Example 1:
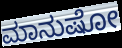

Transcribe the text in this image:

ಮಾನುಷೋ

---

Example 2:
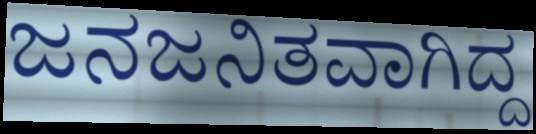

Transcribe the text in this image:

ಜನಜನಿತವಾಗಿದ್ದ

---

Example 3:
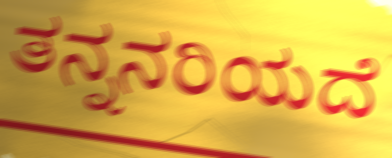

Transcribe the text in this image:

ತನ್ನನರಿಯದೆ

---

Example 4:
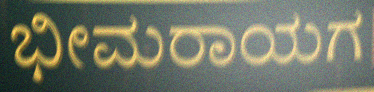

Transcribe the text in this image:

ಭೀಮರಾಯಗ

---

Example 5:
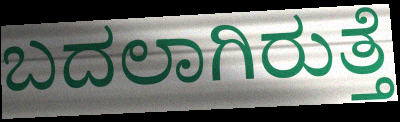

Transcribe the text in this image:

ಬದಲಾಗಿರುತ್ತೆ